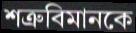
শত্রুবিমানকে